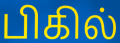
பிகில்